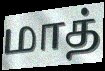
மாத்